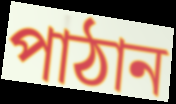
পাঠান